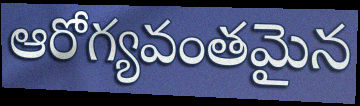
ఆరోగ్యవంతమైన